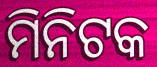
ମିନିଟକ